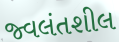
જ્વલંતશીલ